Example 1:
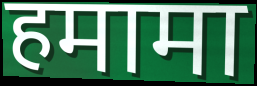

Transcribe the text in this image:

हमामा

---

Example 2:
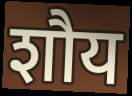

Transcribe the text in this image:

शौय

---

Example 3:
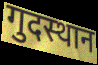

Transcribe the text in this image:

गुदस्थान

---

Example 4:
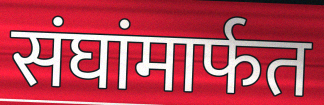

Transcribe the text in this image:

संघांमार्फत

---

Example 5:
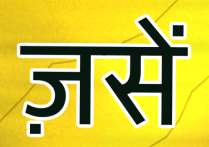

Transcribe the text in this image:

ज़सें